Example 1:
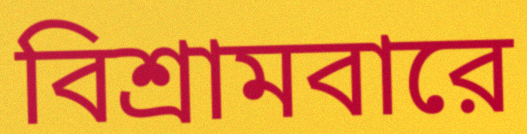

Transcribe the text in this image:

বিশ্রামবারে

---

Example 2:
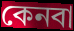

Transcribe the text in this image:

কেনবা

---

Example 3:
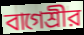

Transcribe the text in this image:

বাগেশ্রীর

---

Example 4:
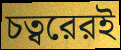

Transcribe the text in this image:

চত্বরেরই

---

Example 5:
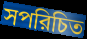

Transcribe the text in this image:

সপরিচিত